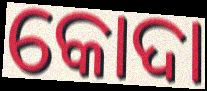
କୋଦା